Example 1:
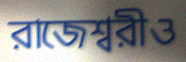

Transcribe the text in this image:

রাজেশ্বরীও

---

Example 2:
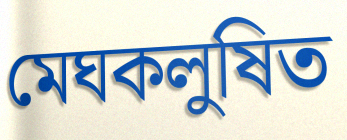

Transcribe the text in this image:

মেঘকলুষিত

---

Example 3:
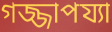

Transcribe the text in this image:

গজ্জাপয্যা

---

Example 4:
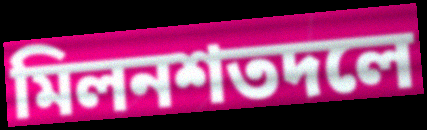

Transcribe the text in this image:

মিলনশতদলে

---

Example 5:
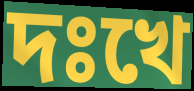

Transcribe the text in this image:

দঃখে